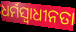
ଧର୍ମସ୍ୱାଧୀନତା